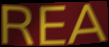
REA